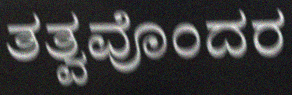
ತತ್ವವೊಂದರ